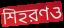
শিহরণও